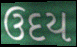
ઉદય